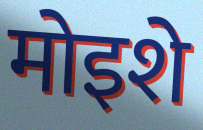
मोइशे